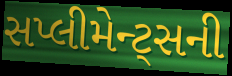
સપ્લીમેન્ટ્સની